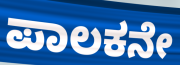
ಪಾಲಕನೇ